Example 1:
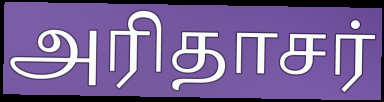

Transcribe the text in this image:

அரிதாசர்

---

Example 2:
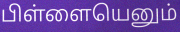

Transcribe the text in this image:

பிள்ளையெனும்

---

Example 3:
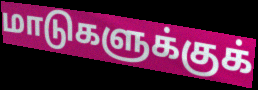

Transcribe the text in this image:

மாடுகளுக்குக்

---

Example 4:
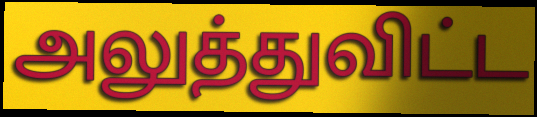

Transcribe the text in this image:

அலுத்துவிட்ட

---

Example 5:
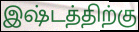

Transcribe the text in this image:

இஷ்டத்திற்கு